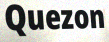
Quezon